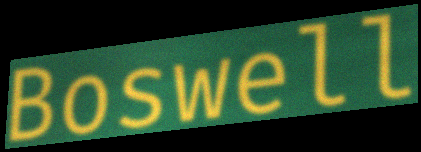
Boswell